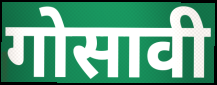
गोसावी